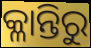
କ୍ଳାନ୍ତିରୁ